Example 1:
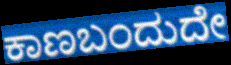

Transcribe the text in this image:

ಕಾಣಬಂದುದೇ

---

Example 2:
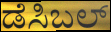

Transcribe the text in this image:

ಡೆಸಿಬಲ್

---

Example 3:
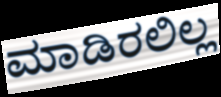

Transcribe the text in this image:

ಮಾಡಿರಲಿಲ್ಲ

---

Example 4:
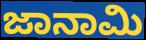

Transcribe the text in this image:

ಜಾನಾಮಿ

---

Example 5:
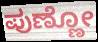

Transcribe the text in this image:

ಪುಣ್ಣೋ